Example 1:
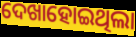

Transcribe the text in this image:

ଦେଖାହୋଇଥିଲା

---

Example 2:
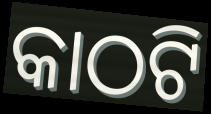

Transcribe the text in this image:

କାଠଟି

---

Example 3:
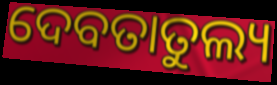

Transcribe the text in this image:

ଦେବତାତୁଲ୍ୟ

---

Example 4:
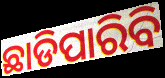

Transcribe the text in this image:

ଛାଡିପାରିବି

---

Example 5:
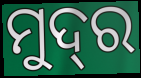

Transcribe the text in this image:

ମୁଦ୍‌ର